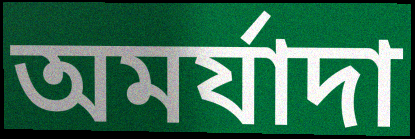
অমর্যাদা